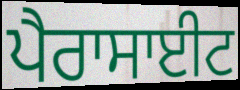
ਪੈਰਾਸਾਈਟ